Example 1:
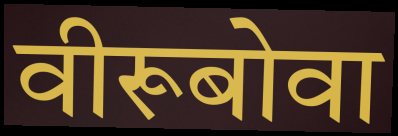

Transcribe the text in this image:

वीरूबोवा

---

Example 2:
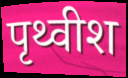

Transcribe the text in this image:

पृथ्वीश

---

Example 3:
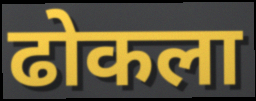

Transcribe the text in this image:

ढोकला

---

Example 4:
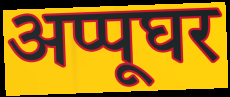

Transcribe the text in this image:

अप्पूघर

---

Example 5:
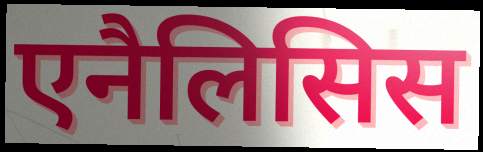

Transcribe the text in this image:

एनैलिसिस